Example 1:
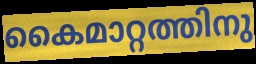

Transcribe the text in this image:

കൈമാറ്റത്തിനു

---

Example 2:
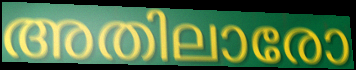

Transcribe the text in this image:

അതിലാരോ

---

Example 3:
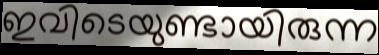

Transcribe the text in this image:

ഇവിടെയുണ്ടായിരുന്ന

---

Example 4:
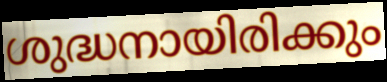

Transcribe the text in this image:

ശുദ്ധനായിരിക്കും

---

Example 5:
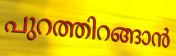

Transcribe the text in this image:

പുറത്തിറങ്ങാൻ